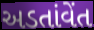
અડતાંવેંત